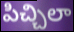
పిచ్చిలా